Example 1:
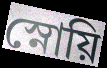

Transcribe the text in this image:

স্নোয়ি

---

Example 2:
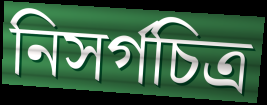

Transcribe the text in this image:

নিসর্গচিত্র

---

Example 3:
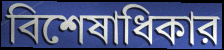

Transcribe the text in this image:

বিশেষাধিকার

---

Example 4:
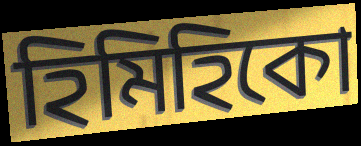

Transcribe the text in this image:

হিমিহিকো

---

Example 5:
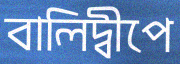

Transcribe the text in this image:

বালিদ্বীপে